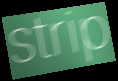
strip